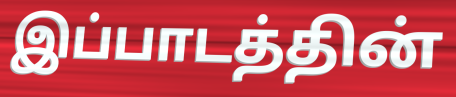
இப்பாடத்தின்